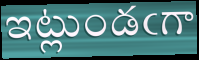
ఇట్లుండఁగా